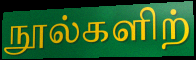
நூல்களிற்